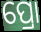
ପ୍ରୋ